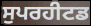
ਸੁਪਰਹੀਟਡ